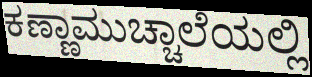
ಕಣ್ಣಾಮುಚ್ಚಾಲೆಯಲ್ಲಿ